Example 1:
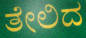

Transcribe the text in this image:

ತೇಲಿದ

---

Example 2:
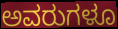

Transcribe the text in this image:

ಅವರುಗಳೂ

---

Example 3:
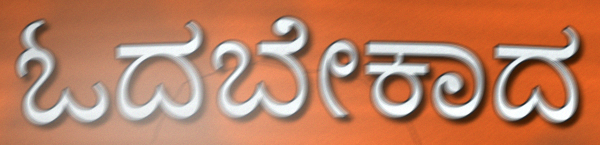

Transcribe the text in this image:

ಓದಬೇಕಾದ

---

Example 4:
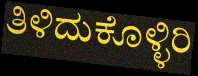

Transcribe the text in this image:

ತಿಳಿದುಕೊಳ್ಳಿರಿ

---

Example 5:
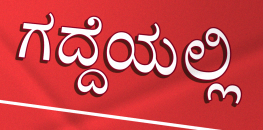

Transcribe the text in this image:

ಗದ್ದೆಯಲ್ಲಿ